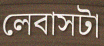
লেবাসটা